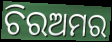
ଚିରଅମର